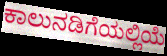
ಕಾಲುನಡಿಗೆಯಲ್ಲಿಯೆ